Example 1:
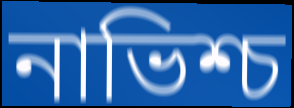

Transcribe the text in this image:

নাভিশ্চ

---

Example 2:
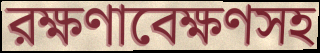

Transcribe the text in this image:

রক্ষণাবেক্ষণসহ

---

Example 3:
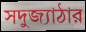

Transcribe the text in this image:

সদুজ্যাঠার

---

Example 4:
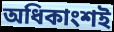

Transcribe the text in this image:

অধিকাংশই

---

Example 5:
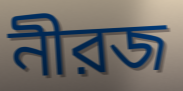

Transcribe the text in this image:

নীরজ